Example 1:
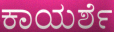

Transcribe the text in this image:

ಕಾಯರ್ಶೆ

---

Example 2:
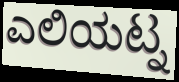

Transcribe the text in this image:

ಎಲಿಯಟ್ನ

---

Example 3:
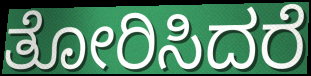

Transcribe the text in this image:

ತೋರಿಸಿದರೆ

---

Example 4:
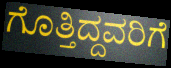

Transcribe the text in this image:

ಗೊತ್ತಿದ್ದವರಿಗೆ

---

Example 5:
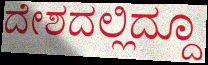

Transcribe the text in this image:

ದೇಶದಲ್ಲಿದ್ದೂ